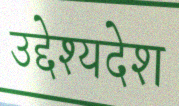
उद्देश्यदेश